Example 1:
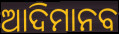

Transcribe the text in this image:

ଆଦିମାନବ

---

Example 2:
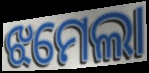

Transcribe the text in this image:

ଝମେଲା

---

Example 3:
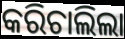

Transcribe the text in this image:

କରିଚାଲିଲା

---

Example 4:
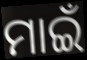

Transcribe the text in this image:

ମାଇଁ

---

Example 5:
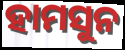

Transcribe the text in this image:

ହାମସୁନ